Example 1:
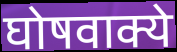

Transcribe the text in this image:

घोषवाक्ये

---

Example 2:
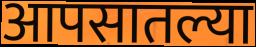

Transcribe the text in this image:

आपसातल्या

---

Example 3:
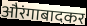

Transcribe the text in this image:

औरंगाबादकर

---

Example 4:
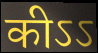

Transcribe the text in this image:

कीऽऽ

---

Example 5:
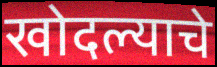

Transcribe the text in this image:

खोदल्याचे